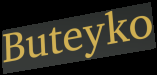
Buteyko